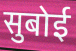
सुबोई